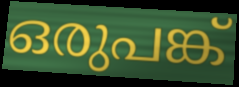
ഒരുപങ്ക്